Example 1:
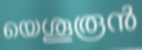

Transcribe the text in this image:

യെശൂരൂൻ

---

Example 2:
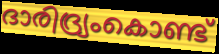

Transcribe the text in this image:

ദാരിദ്ര്യംകൊണ്ട്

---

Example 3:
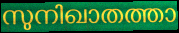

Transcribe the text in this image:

സുനിഖാതത്താ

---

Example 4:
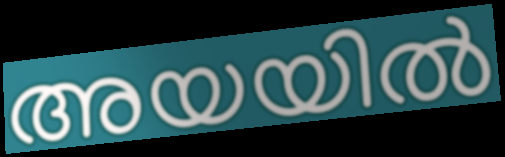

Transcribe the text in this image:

അയയിൽ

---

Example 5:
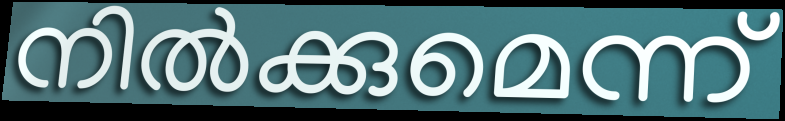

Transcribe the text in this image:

നിൽക്കുമെന്ന്